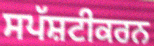
ਸਪੱਸ਼ਟੀਕਰਨ